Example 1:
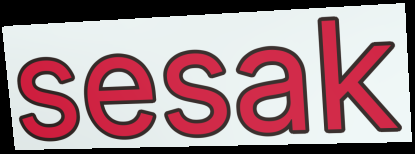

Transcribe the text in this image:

sesak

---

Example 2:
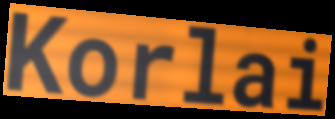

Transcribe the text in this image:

Korlai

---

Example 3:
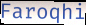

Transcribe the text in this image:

Faroqhi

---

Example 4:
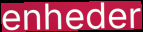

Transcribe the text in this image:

enheder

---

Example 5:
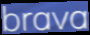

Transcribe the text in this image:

brava